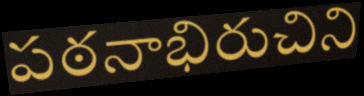
పఠనాభిరుచిని